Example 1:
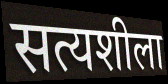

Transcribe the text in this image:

सत्यशीला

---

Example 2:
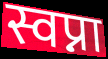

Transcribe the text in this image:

स्वप्ना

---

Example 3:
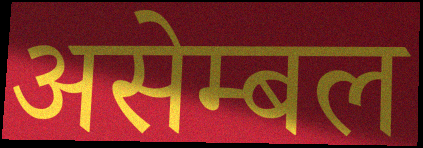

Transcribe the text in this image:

असेम्बल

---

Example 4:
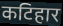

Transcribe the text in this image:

कटिहार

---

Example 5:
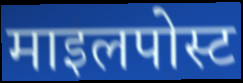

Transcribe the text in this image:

माइलपोस्ट